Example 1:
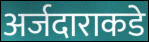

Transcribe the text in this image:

अर्जदाराकडे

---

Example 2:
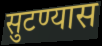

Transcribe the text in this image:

सुटण्यास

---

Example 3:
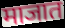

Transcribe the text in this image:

माजात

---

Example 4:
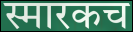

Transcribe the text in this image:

स्मारकच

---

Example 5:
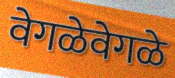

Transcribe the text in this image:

वेगळेवेगळे